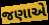
જણાએ